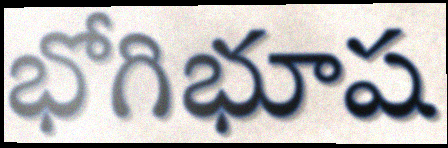
భోగిభూష